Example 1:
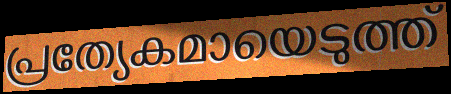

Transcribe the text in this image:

പ്രത്യേകമായെടുത്ത്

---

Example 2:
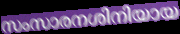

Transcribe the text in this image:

സംസാരനശിനിയായ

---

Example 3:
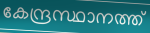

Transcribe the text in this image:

കേന്ദ്രസ്ഥാനത്ത്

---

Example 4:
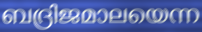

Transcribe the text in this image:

ബദ്രിജമാലയെന്ന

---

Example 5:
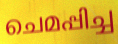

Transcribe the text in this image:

ചെമപ്പിച്ച